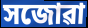
সজোৱা